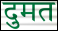
दुमत